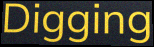
Digging